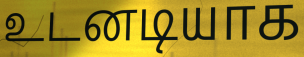
உடனடியாக